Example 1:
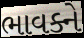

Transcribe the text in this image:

ભાવક્ને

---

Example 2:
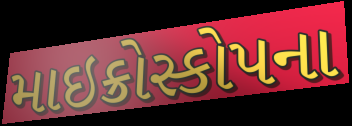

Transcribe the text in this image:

માઇક્રોસ્કોપના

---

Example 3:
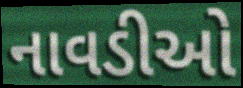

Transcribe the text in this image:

નાવડીઓ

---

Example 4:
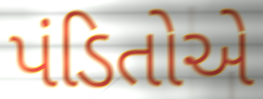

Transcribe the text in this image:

પંડિતોએ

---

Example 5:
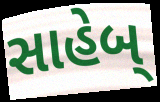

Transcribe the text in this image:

સાહેબ્